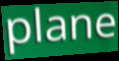
plane